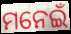
ମନେଇଁ